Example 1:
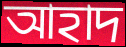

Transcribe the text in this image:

আহাদ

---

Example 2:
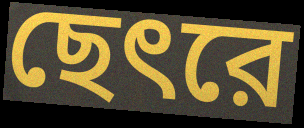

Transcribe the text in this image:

ছেৎরে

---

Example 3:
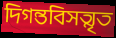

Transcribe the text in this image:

দিগন্তবিসত্মৃত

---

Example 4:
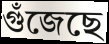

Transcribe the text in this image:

গুঁজেছে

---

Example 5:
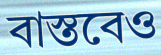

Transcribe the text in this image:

বাস্তবেও